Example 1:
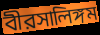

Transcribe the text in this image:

বীরসালিঙ্গম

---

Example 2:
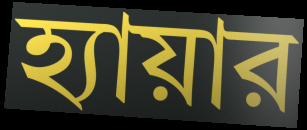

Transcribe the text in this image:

হ্যায়ার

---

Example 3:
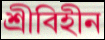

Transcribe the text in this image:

শ্রীবিহীন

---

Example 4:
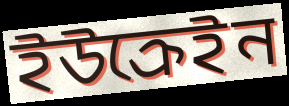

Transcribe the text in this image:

ইউক্রেইন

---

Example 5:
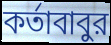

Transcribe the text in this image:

কর্তাবাবুর